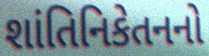
શાંતિનિકેતનનો